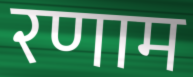
रणाम